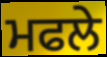
ਮਫਲੇ